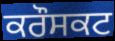
ਕਰੌਸਕਟ